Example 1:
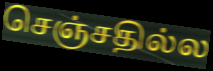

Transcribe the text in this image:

செஞ்சதில்ல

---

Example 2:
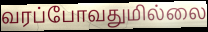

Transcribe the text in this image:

வரப்போவதுமில்லை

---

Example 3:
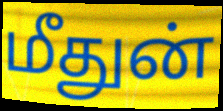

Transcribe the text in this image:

மீதுன்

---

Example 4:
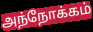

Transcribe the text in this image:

அந்நோக்கம்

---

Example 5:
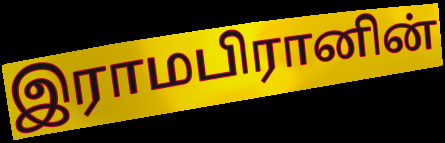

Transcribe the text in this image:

இராமபிரானின்